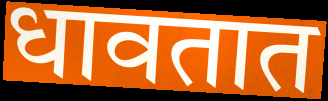
धावतात